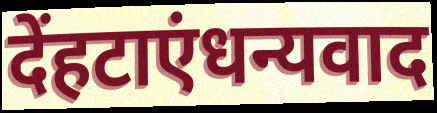
देंहटाएंधन्यवाद